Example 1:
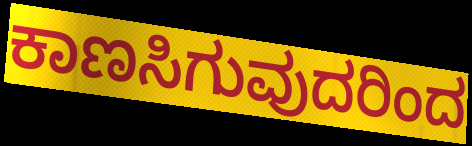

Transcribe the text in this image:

ಕಾಣಸಿಗುವುದರಿಂದ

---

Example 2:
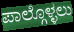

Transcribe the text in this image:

ಪಾಲ್ಗೊಳ್ಳಲು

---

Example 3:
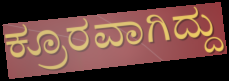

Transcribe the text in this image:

ಕ್ರೂರವಾಗಿದ್ದು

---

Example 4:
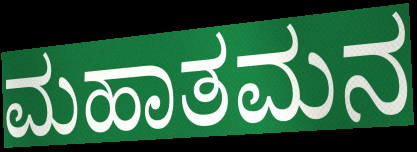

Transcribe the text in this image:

ಮಹಾತಮನ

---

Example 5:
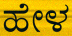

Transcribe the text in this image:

ಹೇಳ